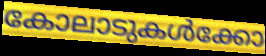
കോലാടുകൾക്കോ